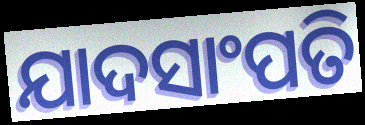
ଯାଦସାଂପତି